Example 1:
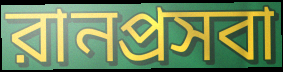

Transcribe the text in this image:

রানপ্রসবা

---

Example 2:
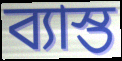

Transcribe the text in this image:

ব্যাস্ত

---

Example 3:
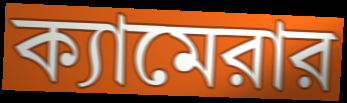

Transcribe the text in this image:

ক্যামেরার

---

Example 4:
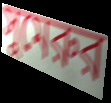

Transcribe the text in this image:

সুমেরুর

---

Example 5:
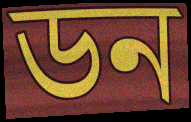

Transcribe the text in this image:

ডন